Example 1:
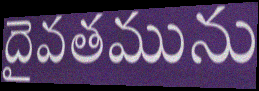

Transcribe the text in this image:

దైవతమును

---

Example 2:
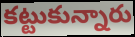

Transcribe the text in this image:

కట్టుకున్నారు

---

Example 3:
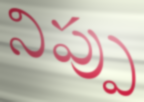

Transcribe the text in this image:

నిప్పు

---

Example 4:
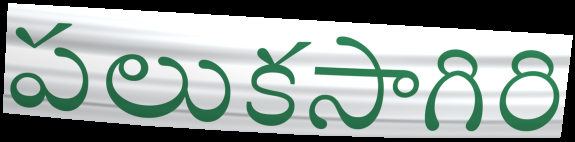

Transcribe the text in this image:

పలుకసాగిరి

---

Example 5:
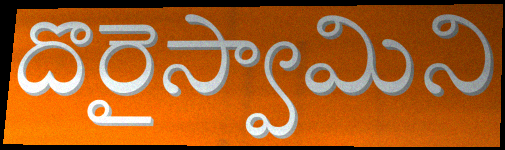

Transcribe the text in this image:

దొరైస్వామిని